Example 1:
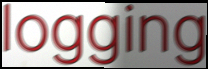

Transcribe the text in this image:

logging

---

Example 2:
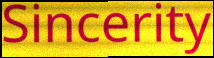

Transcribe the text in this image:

Sincerity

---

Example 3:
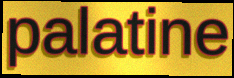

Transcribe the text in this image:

palatine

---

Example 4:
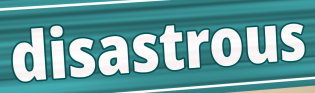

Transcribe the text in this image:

disastrous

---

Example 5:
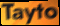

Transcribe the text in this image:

Tayto